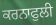
ਕਰਨਾਫੁਲੀ